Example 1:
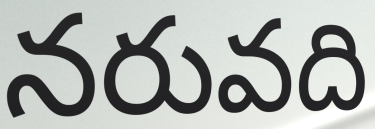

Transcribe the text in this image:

నరువది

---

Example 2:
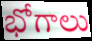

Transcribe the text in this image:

భోగాలు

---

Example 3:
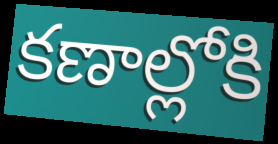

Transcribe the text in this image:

కణాల్లోకి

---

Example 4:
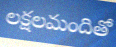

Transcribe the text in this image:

లక్షలమందితో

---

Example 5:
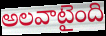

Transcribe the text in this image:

అలవాటైంది